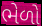
ભેળો